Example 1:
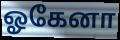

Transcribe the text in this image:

ஓகேனா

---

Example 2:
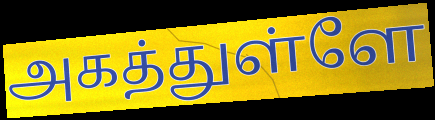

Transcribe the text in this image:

அகத்துள்ளே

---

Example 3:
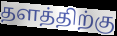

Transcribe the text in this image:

தளத்திற்கு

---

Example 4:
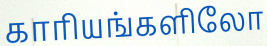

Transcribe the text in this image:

காரியங்களிலோ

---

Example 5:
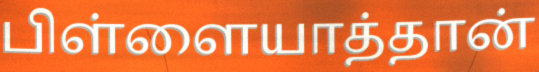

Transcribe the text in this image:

பிள்ளையாத்தான்